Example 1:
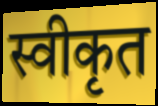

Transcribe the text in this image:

स्‍वीकृत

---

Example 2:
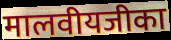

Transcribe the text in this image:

मालवीयजीका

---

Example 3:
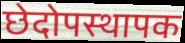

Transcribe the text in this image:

छेदोपस्थापक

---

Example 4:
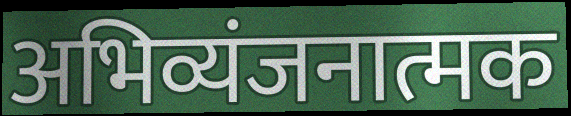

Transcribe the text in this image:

अभिव्यंजनात्मक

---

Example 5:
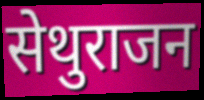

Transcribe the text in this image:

सेथुराजन